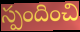
స్పందించి